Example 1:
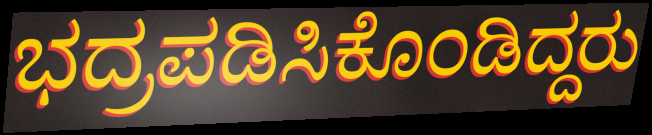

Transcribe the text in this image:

ಭದ್ರಪಡಿಸಿಕೊಂಡಿದ್ದರು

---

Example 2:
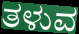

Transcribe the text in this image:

ತಳುವ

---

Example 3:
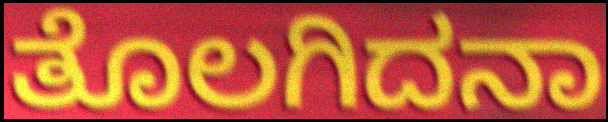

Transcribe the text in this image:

ತೊಲಗಿದನಾ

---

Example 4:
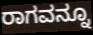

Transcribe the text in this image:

ರಾಗವನ್ನೂ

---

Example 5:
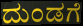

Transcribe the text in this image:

ದುಂಡಗೆ